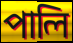
পালি